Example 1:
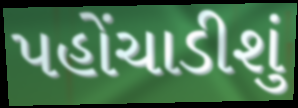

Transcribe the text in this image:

પહોંચાડીશું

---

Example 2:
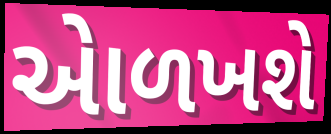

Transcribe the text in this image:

એાળખશે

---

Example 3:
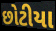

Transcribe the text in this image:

છોટીયા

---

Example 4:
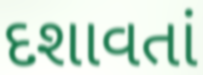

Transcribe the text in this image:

દશાવતાં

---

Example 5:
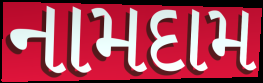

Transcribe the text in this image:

નામદામ